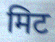
मिट